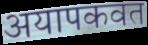
अयापकवत